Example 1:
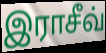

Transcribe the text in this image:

இராசீவ்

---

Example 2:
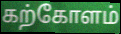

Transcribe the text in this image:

கற்கோளம்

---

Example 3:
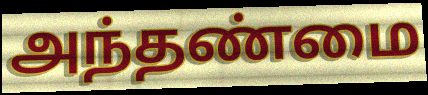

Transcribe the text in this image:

அந்தண்மை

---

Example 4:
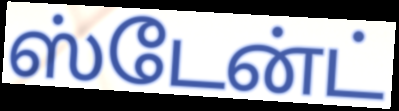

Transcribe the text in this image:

ஸ்டேன்ட்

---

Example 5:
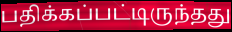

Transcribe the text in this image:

பதிக்கப்பட்டிருந்தது